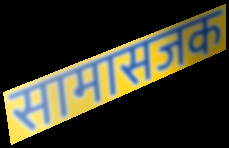
सामासजक